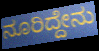
ನೂರಿದ್ದೇನು